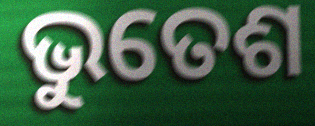
ଭୁତେଶ